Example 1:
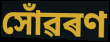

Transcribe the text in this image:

সোঁৱৰণ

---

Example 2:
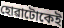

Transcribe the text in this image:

হোৱাটোকেই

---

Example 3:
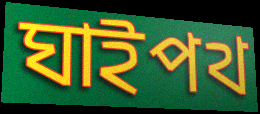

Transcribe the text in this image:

ঘাইপথ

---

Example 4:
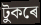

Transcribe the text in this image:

টুকৰে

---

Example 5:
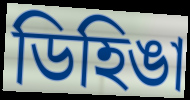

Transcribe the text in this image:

ডিহিঙা